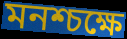
মনশ্চক্ষে